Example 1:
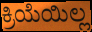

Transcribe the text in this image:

ಕ್ರಿಯೆಯಿಲ್ಲ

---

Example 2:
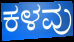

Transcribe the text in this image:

ಕಳವು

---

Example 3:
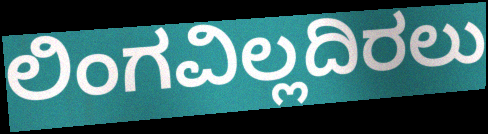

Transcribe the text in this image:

ಲಿಂಗವಿಲ್ಲದಿರಲು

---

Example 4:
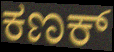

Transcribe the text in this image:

ಕಣಕ್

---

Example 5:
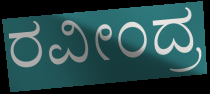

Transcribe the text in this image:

ರವೀಂದ್ರ